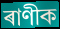
ৰাণীক